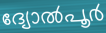
ദ്യോൽപൂർ